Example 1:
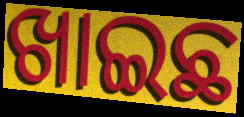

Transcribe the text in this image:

ଖାଇଛ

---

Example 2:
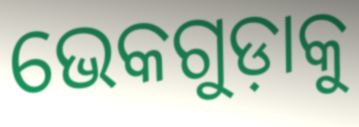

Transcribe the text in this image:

ଭେକଗୁଡ଼ାକୁ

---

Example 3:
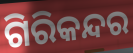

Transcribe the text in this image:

ଗିରିକନ୍ଦର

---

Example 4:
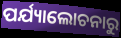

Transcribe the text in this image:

ପର୍ଯ୍ୟାଲୋଚନାରୁ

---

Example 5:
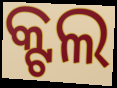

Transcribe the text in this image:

କ୍ଟଲ